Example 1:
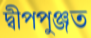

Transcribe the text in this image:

দ্বীপপুঞ্জত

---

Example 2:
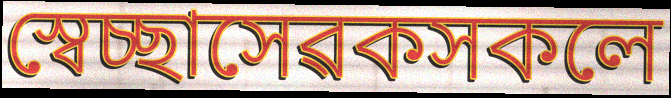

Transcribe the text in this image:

স্বেচ্ছাসেৱকসকলে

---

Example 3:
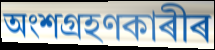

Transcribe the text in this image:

অংশগ্ৰহণকাৰীৰ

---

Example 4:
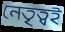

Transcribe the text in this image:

নেতৃত্বই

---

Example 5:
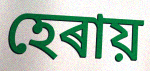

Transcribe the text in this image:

হেৰায়